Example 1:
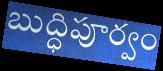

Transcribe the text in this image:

బుద్ధిపూర్వం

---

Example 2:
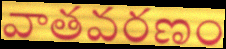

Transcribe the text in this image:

వాతవరణం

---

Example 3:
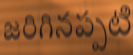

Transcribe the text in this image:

జరిగినప్పటి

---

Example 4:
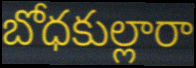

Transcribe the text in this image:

బోధకుల్లారా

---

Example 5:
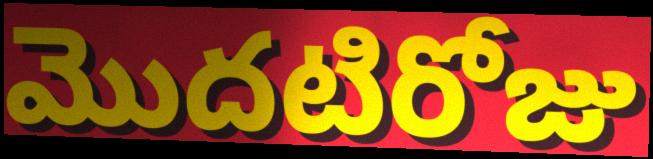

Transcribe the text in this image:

మొదటిరోజు